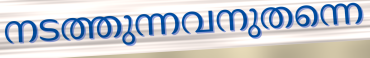
നടത്തുന്നവനുതന്നെ